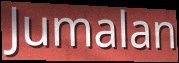
Jumalan